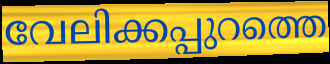
വേലിക്കപ്പുറത്തെ